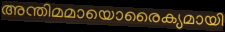
അന്തിമമായൊരൈക്യമായി